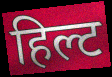
हिल्ट